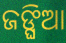
ଜଙ୍ଘିଆ